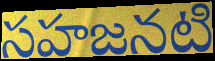
సహజనటి